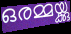
ഒരമ്മയ്ക്കു